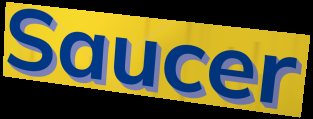
Saucer